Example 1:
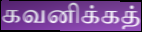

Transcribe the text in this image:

கவனிக்கத்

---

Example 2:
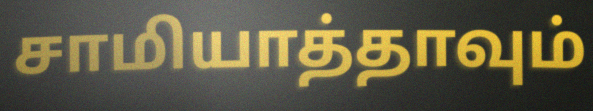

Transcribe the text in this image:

சாமியாத்தாவும்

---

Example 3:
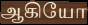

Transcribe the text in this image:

ஆகியோ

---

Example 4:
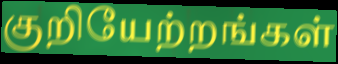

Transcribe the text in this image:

குறியேற்றங்கள்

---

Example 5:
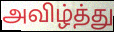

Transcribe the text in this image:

அவிழ்த்து